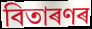
বিতাৰণৰ